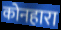
कोनहारा